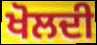
ਖੋਲਦੀ